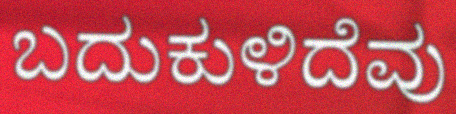
ಬದುಕುಳಿದೆವು